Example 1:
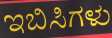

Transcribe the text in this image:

ಇಬಿಸಿಗಳು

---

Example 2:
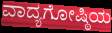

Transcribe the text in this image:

ವಾದ್ಯಗೋಷ್ಠಿಯ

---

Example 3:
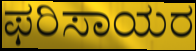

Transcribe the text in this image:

ಫರಿಸಾಯರ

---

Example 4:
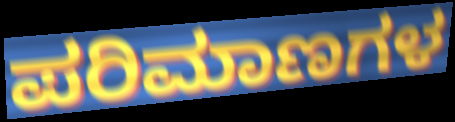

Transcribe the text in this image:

ಪರಿಮಾಣಗಳ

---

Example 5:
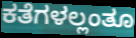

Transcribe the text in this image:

ಕತೆಗಳಲ್ಲಂತೂ